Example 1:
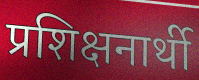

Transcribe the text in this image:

प्रशिक्षनार्थी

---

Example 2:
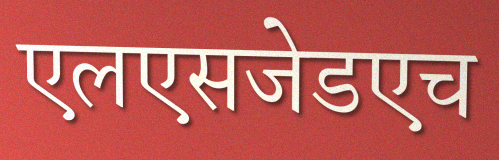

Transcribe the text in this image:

एलएसजेडएच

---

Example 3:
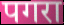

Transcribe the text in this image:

पगरा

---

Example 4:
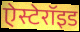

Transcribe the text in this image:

ऐस्टेरॉइड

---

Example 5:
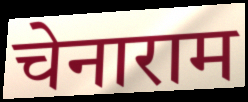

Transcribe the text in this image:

चेनाराम